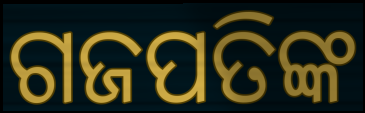
ଗଜପତିଙ୍କ